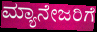
ಮ್ಯಾನೇಜರಿಗೆ